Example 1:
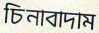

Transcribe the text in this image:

চিনাবাদাম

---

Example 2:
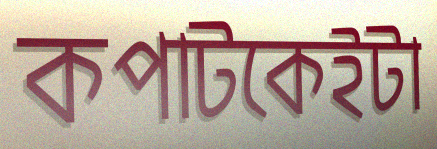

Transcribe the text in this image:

কপাটকেইটা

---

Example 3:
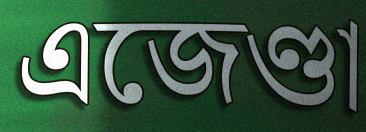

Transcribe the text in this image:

এজেণ্ডা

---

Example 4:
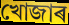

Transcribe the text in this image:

খোজাৰ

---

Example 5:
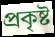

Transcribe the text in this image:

প্ৰকৃষ্ট